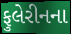
ફુલેરીનના